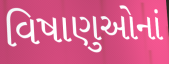
વિષાણુઓનાં